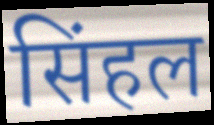
सिंहल